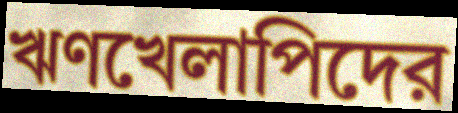
ঋণখেলাপিদের